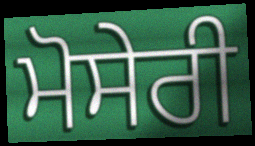
ਮੋਸੇਰੀ